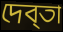
দেব্‌তা